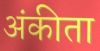
अंकीता